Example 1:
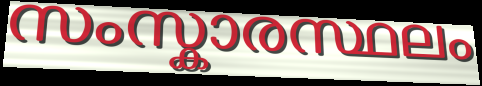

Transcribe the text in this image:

സംസ്കാരസ്ഥലം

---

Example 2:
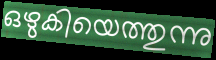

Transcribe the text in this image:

ഒഴുകിയെത്തുന്നു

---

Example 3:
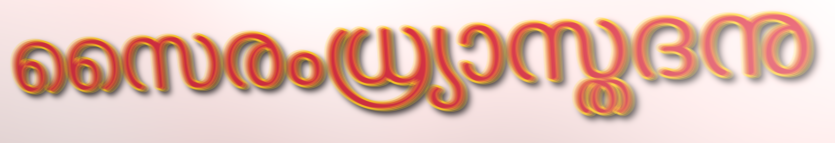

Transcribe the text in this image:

സൈരംധ്ര്യാസ്തദനു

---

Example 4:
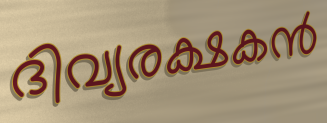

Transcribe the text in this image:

ദിവ്യരക്ഷകൻ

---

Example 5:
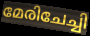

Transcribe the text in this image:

മേരിചേച്ചി